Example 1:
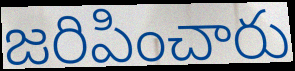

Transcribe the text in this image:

జరిపించారు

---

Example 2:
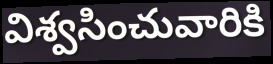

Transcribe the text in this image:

విశ్వసించువారికి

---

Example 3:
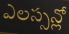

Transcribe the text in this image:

ఎలస్సన్లో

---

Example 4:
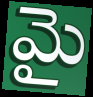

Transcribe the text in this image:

మై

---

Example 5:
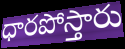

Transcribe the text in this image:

ధారపోస్తారు